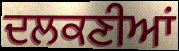
ਦਲਕਣੀਆਂ